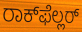
ರಾಕ್‌ಫೆಲ್ಲರ್